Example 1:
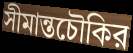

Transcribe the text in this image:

সীমান্তচৌকির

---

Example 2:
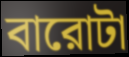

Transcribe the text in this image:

বারোটা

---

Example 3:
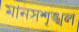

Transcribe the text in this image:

মানসশৃঙ্খল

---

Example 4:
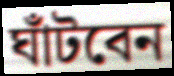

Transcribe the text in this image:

ঘাঁটবেন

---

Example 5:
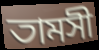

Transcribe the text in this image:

তামসী